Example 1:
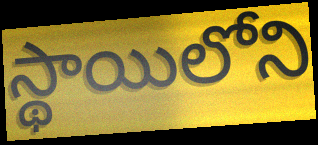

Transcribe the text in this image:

స్థాయిలోని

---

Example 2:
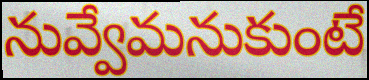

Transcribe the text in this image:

నువ్వేమనుకుంటే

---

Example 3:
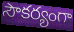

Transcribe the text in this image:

సౌకర్యంగా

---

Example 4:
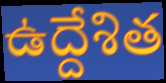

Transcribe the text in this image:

ఉద్దేశిత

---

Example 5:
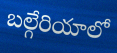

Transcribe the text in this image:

బల్గేరియాలో